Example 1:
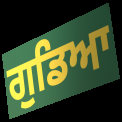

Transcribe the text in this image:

ਗੁਡਿਆ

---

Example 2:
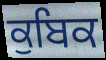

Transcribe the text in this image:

ਕੁਬਿਕ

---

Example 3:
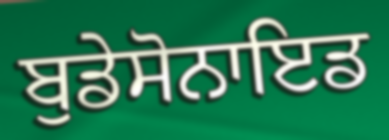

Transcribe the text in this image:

ਬੁਡੇਸੋਨਾਇਡ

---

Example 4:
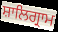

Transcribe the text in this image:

ਸ਼ਾਲਿਗ੍ਰਾਮ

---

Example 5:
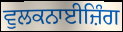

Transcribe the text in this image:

ਵੁਲਕਨਾਈਜ਼ਿੰਗ